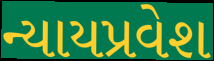
ન્યાયપ્રવેશ